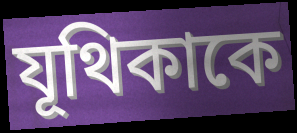
যূথিকাকে